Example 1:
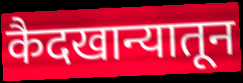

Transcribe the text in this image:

कैदखान्यातून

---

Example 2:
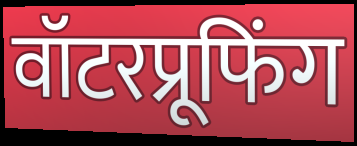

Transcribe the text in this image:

वॉटरप्रूफिंग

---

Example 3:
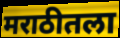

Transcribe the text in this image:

मराठीतला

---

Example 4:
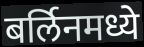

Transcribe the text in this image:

बर्लिनमध्ये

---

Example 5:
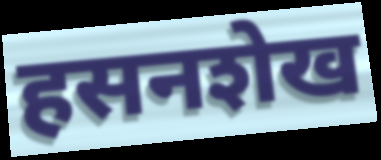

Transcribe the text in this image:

हसनशेख